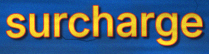
surcharge